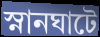
স্নানঘাটে